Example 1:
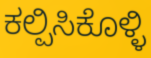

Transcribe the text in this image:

ಕಲ್ಪಿಸಿಕೊಳ್ಳಿ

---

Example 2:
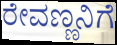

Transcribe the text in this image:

ರೇವಣ್ಣನಿಗೆ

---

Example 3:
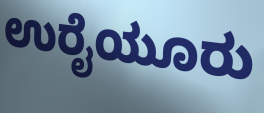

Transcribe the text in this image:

ಉರೈಯೂರು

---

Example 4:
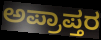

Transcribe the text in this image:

ಅಪ್ರಾಪ್ತರ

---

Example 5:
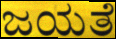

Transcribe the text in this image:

ಜಯತೆ